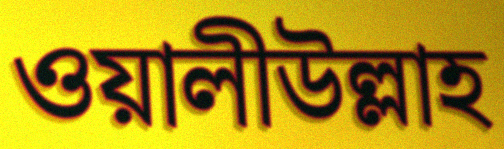
ওয়ালীউল্লাহ